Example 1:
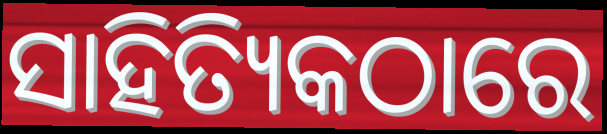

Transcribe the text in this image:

ସାହିତ୍ୟିକଠାରେ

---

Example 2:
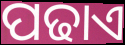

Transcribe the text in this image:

ପଢାଏ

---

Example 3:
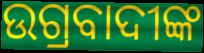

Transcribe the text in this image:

ଉଗ୍ରବାଦୀଙ୍କ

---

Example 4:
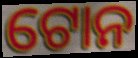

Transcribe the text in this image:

ଟୋନ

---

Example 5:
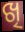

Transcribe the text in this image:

ଖି